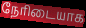
நேரிடையாக